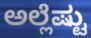
ಅಲ್ಲೆಷ್ಟು